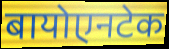
बायोएनटेक